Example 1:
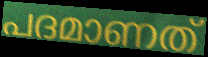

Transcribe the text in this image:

പദമാണത്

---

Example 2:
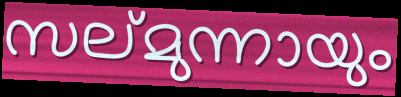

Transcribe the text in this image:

സല്മുന്നായും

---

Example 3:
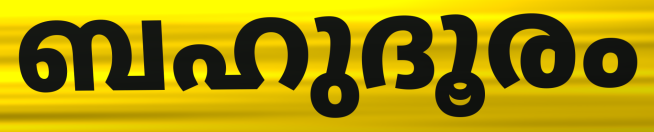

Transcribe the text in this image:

ബഹുദൂരം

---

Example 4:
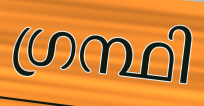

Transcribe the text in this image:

ഗ്രന്ഥി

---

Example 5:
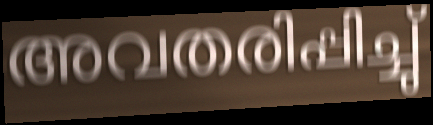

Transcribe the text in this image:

അവതരിപ്പിച്ചു്